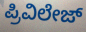
ಪ್ರಿವಿಲೇಜ್